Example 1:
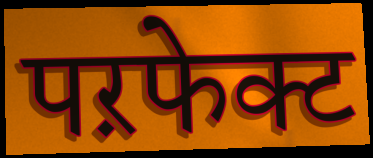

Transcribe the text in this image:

पऱफेक्ट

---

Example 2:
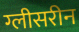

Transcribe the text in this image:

ग्लीसरीन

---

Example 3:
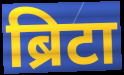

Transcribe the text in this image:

ब्रिटा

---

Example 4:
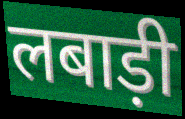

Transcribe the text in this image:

लबाड़ी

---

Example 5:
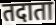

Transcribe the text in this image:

तदाता